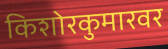
किशोरकुमारवर